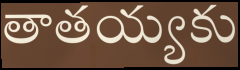
తాతయ్యకు